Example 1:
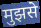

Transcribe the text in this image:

मुझसे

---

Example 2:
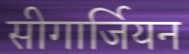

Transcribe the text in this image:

सीगार्जियन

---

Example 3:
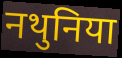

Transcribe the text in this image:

नथुनिया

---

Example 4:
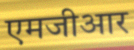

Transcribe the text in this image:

एमजीआर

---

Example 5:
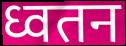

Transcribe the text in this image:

ध्वतन